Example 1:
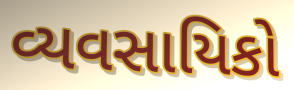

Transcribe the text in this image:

વ્યવસાયિકો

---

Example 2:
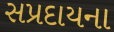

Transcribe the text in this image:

સપ્રદાયના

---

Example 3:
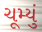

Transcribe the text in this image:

ચૂમ્યું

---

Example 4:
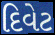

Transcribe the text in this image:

દિવેટ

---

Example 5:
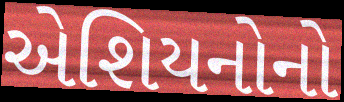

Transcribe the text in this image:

એશિયનોનો